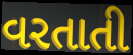
વરતાતી